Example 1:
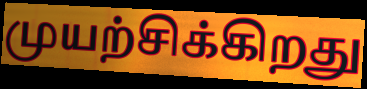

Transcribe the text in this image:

முயற்சிக்கிறது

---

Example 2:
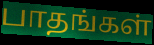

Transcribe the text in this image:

பாதங்கள்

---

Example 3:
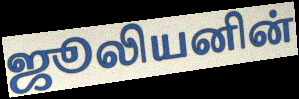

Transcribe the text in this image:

ஜூலியனின்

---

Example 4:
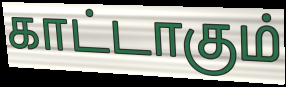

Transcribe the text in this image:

காட்டாகும்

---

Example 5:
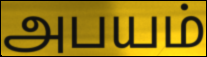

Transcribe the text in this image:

அபயம்